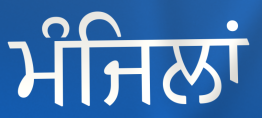
ਮੰਜਿਲਾਂ